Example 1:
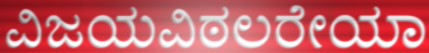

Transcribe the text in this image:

ವಿಜಯವಿಠಲರೇಯಾ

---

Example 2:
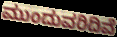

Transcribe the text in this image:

ಮುಂದುವರಿದಿವೆ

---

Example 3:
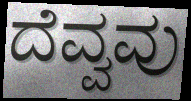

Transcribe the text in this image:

ದೆವ್ವವು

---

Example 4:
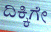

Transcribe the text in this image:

ದಿಕ್ಕಿಗೇ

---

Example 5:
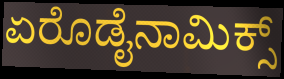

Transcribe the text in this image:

ಏರೊಡೈನಾಮಿಕ್ಸ್